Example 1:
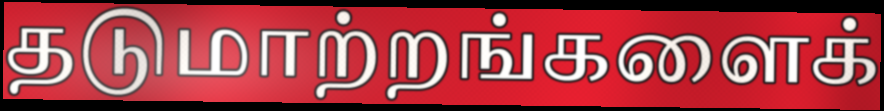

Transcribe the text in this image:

தடுமாற்றங்களைக்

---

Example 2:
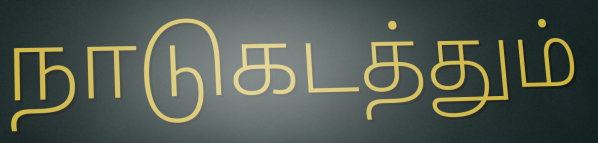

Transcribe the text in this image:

நாடுகடத்தும்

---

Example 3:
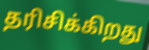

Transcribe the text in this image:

தரிசிக்கிறது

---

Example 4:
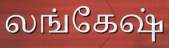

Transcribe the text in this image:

லங்கேஷ்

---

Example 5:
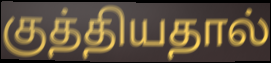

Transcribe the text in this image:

குத்தியதால்